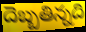
దెబ్బతిన్నది